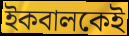
ইকবালকেই